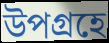
উপগ্রহে